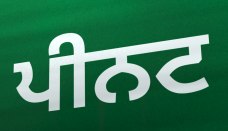
ਪੀਨਟ